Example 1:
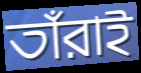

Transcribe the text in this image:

তাঁরাই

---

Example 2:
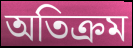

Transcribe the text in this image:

অতিক্রম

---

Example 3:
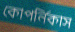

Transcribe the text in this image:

কোপর্নিকাস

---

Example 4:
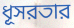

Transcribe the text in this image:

ধূসরতার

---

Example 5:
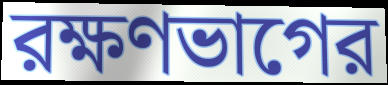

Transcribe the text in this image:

রক্ষণভাগের